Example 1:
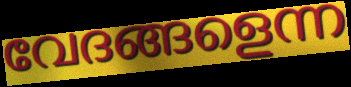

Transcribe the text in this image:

വേദങ്ങളെന്ന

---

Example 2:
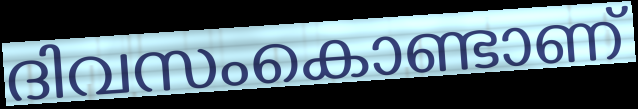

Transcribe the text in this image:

ദിവസംകൊണ്ടാണ്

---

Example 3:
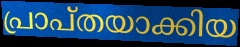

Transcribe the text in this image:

പ്രാപ്തയാക്കിയ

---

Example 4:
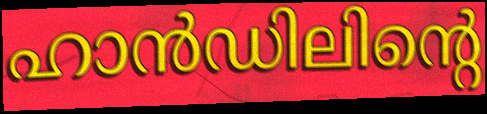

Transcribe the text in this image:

ഹാൻഡിലിന്റെ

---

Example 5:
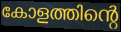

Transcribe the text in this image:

കോളത്തിന്റെ